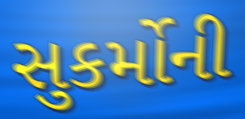
સુકર્મોની